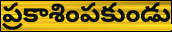
ప్రకాశింపకుండు